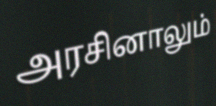
அரசினாலும்